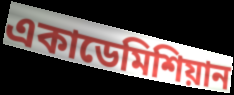
একাডেমিশিয়ান